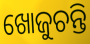
ଖୋଜୁଚନ୍ତି